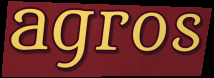
agros